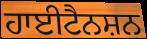
ਹਾਈਟੈਨਸ਼ਨ